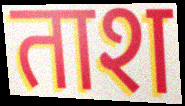
ताश